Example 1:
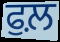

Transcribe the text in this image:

ਫੁਲ਼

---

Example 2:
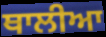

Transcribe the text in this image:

ਥਾਲੀਆ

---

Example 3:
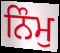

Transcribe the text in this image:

ਨਿੰਮੁ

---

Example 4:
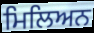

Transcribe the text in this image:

ਮਿਲਿਅਨ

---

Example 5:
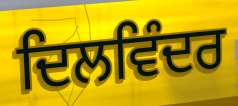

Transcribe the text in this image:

ਦਿਲਵਿੰਦਰ